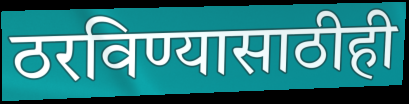
ठरविण्यासाठीही